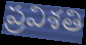
ప్రవిశతి